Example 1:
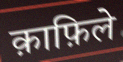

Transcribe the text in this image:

क़ाफ़िले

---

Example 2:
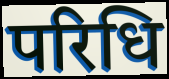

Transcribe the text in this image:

परिधि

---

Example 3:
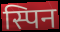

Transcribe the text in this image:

स्पिन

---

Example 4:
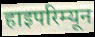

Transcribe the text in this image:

हाइपरिम्यून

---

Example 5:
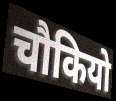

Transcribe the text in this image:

चौकियो